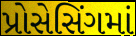
પ્રોસેસિંગમાં